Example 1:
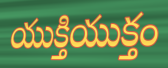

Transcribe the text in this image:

యుక్తియుక్తం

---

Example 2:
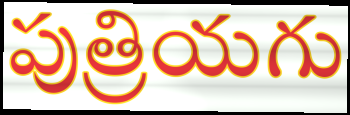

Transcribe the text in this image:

పుత్రియగు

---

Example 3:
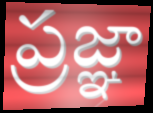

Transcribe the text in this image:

ప్రజ్ఞా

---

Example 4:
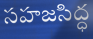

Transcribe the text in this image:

సహజసిద్ధ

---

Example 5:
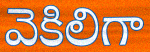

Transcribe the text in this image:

వెకిలిగా